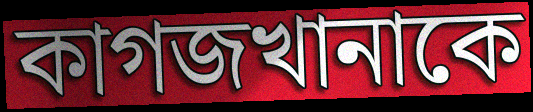
কাগজখানাকে